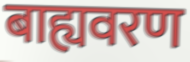
बाह्यवरण